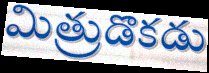
మిత్రుడొకడు